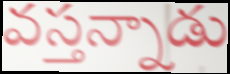
వస్తన్నాడు